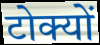
टोक्यों